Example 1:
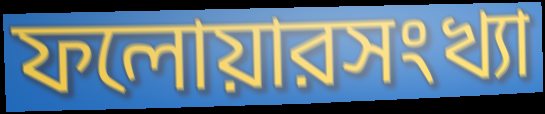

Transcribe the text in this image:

ফলোয়ারসংখ্যা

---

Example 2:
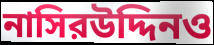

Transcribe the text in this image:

নাসিরউদ্দিনও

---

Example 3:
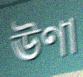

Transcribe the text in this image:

ঊণা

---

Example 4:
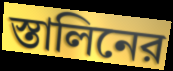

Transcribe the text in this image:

স্তালিনের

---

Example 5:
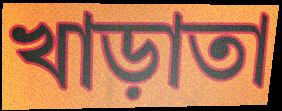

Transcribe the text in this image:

খাড়াতা